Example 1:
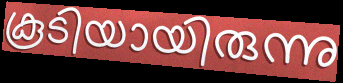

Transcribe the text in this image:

കൂടിയായിരുന്നു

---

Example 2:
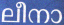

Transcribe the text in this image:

ലീനാ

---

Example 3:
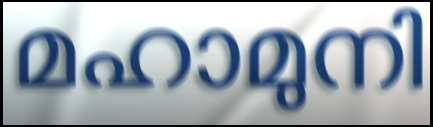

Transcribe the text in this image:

മഹാമുനി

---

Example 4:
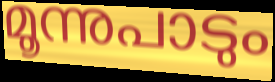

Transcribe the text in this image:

മൂന്നുപാടും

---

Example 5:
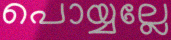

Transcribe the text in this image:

പൊയ്യല്ലേ